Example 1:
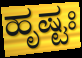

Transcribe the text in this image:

ಹೃಷ್ಟಃ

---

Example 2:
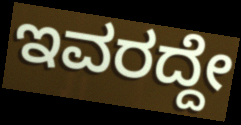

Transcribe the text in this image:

ಇವರದ್ದೇ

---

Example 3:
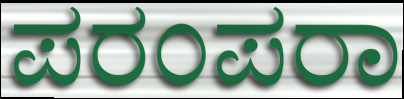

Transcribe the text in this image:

ಪರಂಪರಾ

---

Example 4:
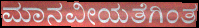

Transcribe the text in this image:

ಮಾನವೀಯತೆಗಿಂತ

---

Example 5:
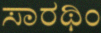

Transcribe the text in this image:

ಸಾರಥಿಂ